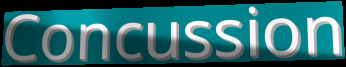
Concussion